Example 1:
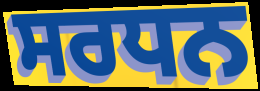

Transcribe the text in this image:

ਸਰਧਨ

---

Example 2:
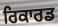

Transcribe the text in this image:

ਰਿਕਾਰਡ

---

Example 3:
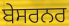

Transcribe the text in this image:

ਬੇਸਰਨਰ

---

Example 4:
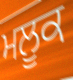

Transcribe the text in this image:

ਮਲੂਕ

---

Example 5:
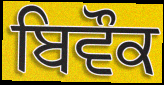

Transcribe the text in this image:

ਬਿਵੌਕ